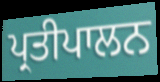
ਪ੍ਰਤੀਪਾਲਨ